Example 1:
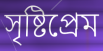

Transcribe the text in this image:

সৃষ্টিপ্রেম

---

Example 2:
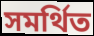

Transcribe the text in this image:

সমর্থিত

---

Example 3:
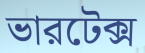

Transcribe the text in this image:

ভারটেক্স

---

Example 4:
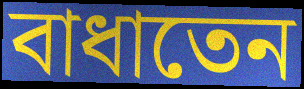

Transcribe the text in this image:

বাধাতেন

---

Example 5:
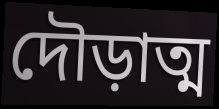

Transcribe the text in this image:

দৌড়াত্ম